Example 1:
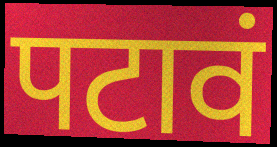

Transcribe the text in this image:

पटावं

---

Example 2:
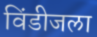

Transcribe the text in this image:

विंडीजला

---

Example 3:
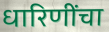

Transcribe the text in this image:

धारिणींचा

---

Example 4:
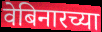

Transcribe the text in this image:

वेबिनारच्या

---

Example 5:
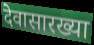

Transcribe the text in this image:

देवासारख्या